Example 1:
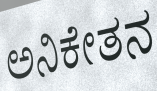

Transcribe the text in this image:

ಅನಿಕೇತನ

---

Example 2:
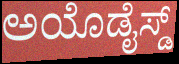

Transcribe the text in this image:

ಅಯೊಡೈಸ್ಡ್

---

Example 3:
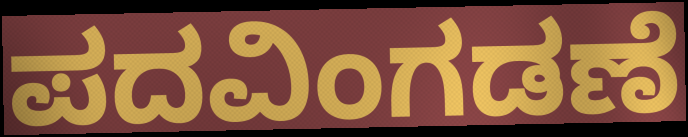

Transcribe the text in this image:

ಪದವಿಂಗಡಣೆ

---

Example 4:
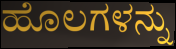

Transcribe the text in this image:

ಹೊಲಗಳನ್ನು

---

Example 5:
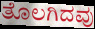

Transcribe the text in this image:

ತೊಲಗಿದವು